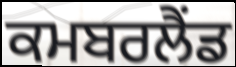
ਕਮਬਰਲੈਂਡ